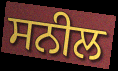
ਸਨੀਲ